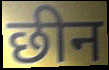
छीन